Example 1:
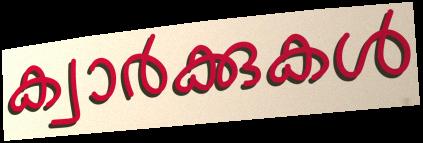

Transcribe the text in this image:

ക്വാർക്കുകൾ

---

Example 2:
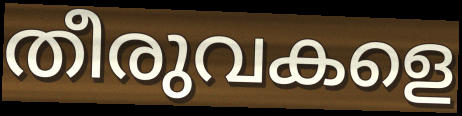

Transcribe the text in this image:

തീരുവകളെ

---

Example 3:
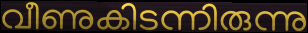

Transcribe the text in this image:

വീണുകിടന്നിരുന്നു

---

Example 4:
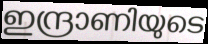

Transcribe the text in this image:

ഇന്ദ്രാണിയുടെ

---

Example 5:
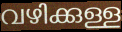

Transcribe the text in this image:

വഴിക്കുള്ള